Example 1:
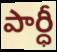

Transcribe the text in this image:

పార్ధీ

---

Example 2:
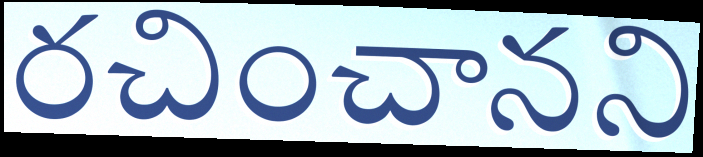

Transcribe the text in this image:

రచించానని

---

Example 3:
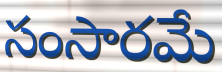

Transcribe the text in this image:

సంసారమే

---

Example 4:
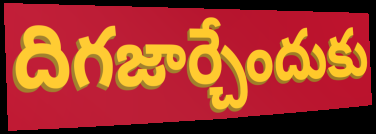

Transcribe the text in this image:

దిగజార్చేందుకు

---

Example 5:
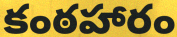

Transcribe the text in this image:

కంఠహారం